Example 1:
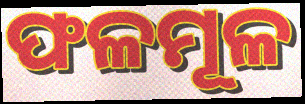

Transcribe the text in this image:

ଫଳମୂଳ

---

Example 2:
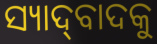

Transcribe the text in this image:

ସ୍ୟାଦ୍‌ବାଦକୁ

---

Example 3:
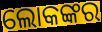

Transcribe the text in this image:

ଲୋକଙ୍କର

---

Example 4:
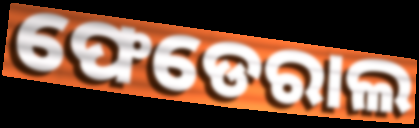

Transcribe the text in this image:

ଫେଡେରାଲ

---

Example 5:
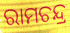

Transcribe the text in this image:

ରାମଚନ୍ଦ୍ର